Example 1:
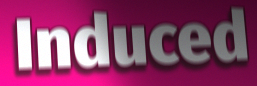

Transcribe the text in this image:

Induced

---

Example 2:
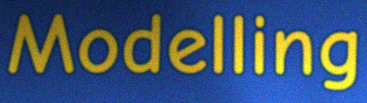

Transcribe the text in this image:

Modelling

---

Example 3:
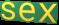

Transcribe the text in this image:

sex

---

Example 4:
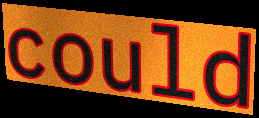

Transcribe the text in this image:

could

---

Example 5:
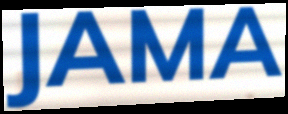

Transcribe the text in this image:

JAMA